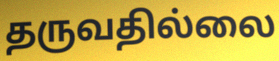
தருவதில்லை